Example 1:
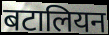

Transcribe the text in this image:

बटालियन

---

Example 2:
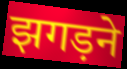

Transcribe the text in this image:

झगड़ने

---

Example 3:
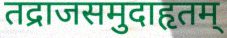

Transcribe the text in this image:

तद्राजसमुदाहृतम्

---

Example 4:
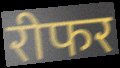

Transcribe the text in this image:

रीफर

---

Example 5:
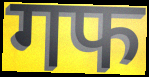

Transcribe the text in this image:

गफ